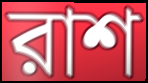
রাশ